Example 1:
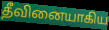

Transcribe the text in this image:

தீவினையாகிய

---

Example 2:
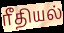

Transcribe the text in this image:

ரீதியல்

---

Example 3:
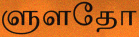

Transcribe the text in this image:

ளுளதோ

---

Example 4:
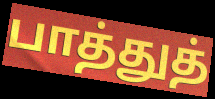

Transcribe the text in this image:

பாத்துத்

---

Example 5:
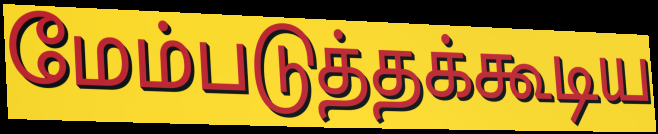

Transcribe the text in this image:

மேம்படுத்தக்கூடிய